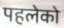
पहलेको